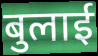
बुलाई